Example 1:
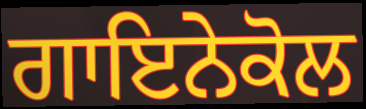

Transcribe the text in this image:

ਗਾਇਨੇਕੋਲ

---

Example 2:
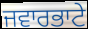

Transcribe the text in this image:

ਜਵਾਰਭਾਟੇ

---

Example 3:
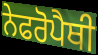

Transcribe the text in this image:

ਨੇਫਰੋਪੈਥੀ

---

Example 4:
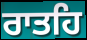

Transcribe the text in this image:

ਰਾਤਹਿ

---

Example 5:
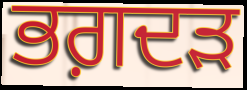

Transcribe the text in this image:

ਭਗ਼ਦੜ